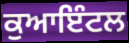
ਕੁਆਇੰਟਲ